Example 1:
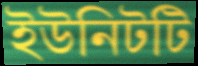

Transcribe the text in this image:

ইউনিটটি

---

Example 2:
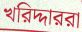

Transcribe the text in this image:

খরিদ্দাররা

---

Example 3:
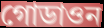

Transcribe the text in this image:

গোডাওন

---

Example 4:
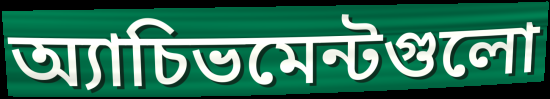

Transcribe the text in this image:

অ্যাচিভমেন্টগুলো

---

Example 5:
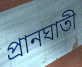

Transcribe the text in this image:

প্রানঘাতী